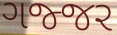
ગજ્જર